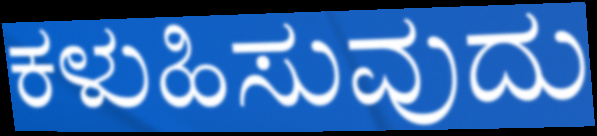
ಕಳುಹಿಸುವುದು